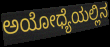
ಅಯೋಧ್ಯೆಯಲ್ಲಿನ